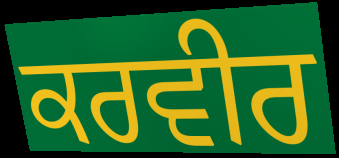
ਕਰਵੀਰ